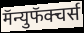
मॅन्युफॅक्चर्स